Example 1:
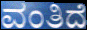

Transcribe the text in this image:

ವಂತಿದೆ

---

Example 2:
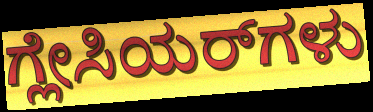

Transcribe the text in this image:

ಗ್ಲೇಸಿಯರ್‌ಗಳು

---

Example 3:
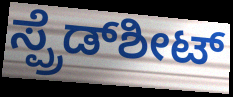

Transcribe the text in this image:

ಸ್ಪ್ರೆಡ್‌ಶೀಟ್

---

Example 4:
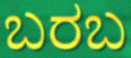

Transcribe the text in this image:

ಬರಬ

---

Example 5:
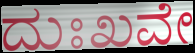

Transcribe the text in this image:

ದುಃಖವೇ